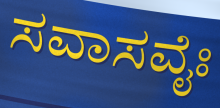
ಸವಾಸವೈಃ